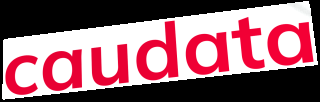
caudata